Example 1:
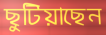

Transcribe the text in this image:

ছুটিয়াছেন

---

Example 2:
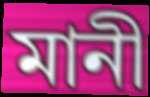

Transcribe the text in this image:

মানী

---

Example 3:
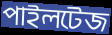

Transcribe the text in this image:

পাইলটেজ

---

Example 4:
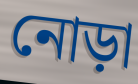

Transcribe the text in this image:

নোড়া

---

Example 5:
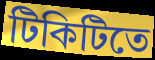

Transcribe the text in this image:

টিকিটিতে